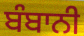
ਬੰਬਾਨੀ